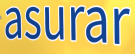
asurar